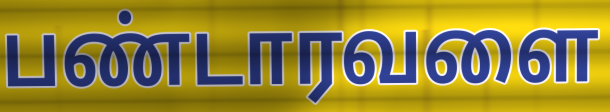
பண்டாரவளை